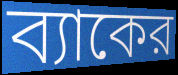
ব্যাকের